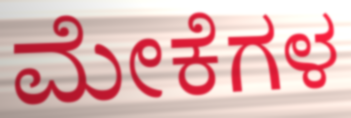
ಮೇಕೆಗಳ